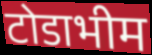
टोडाभीम